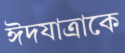
ঈদযাত্রাকে